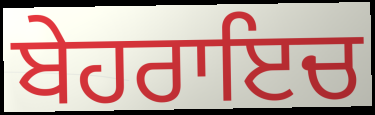
ਬੇਹਰਾਇਚ